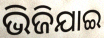
ଭିଜିଯାଇ